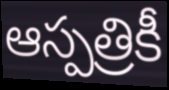
ఆస్పత్రికీ